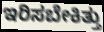
ಇರಿಸಬೇಕಿತ್ತು